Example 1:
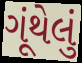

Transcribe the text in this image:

ગૂંથેલું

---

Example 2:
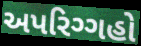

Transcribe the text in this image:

અપરિગ્ગહો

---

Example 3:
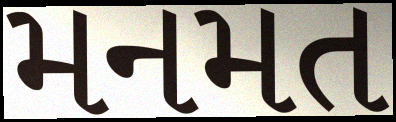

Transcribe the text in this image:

મનમત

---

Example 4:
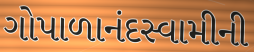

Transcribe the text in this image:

ગોપાળાનંદસ્વામીની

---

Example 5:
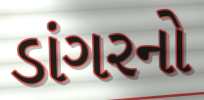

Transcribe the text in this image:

ડાંગરનો